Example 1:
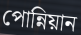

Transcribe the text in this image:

পোন্নিয়ান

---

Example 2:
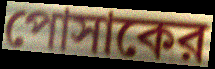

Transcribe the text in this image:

পোসাকের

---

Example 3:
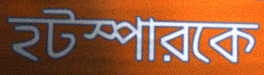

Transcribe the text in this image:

হটস্পারকে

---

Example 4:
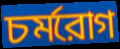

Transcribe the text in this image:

চর্মরোগ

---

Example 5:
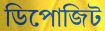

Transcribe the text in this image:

ডিপোজিট